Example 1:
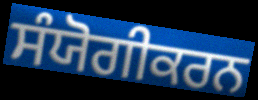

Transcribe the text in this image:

ਸੰਯੋਗੀਕਰਨ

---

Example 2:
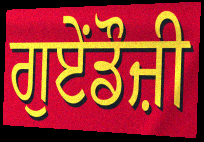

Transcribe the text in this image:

ਗੁਏਂਡੌਜ਼ੀ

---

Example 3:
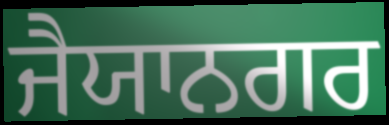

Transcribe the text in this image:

ਜੈਯਾਨਗਰ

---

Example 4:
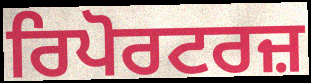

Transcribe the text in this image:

ਰਿਪੋਰਟਰਜ਼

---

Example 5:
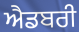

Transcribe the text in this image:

ਐਡਬਰੀ